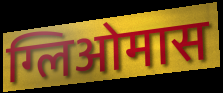
ग्लिओमास